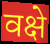
वक्षे